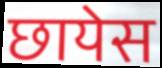
छायेस